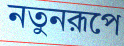
নতুনরূপে